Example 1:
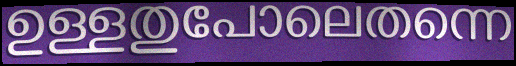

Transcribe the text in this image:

ഉള്ളതുപോലെതന്നെ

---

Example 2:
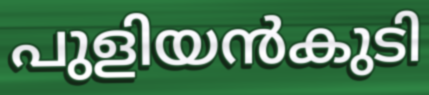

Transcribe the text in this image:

പുളിയൻകുടി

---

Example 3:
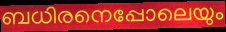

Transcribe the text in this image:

ബധിരനെപ്പോലെയും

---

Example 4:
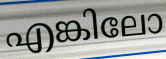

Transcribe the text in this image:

എങ്കിലോ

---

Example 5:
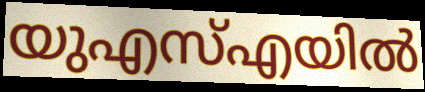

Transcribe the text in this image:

യുഎസ്എയിൽ